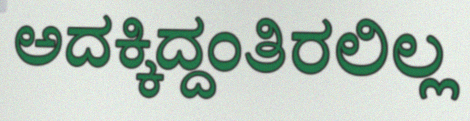
ಅದಕ್ಕಿದ್ದಂತಿರಲಿಲ್ಲ